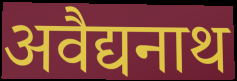
अवैद्यनाथ